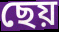
ছেয়